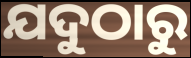
ଯଦୁଠାରୁ